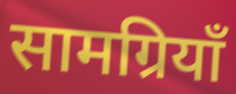
सामग्रियाँ